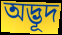
অদ্ভূদ